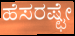
ಹೆಸರಷ್ಟೇ